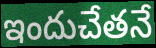
ఇందుచేతనే